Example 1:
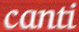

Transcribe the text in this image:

canti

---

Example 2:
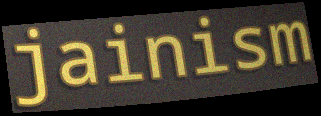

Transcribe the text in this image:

jainism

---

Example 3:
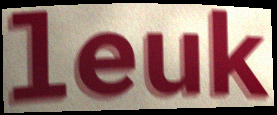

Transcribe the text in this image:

leuk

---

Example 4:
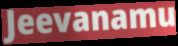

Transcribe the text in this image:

Jeevanamu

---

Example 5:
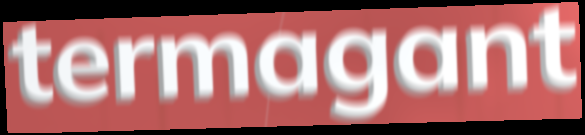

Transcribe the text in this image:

termagant